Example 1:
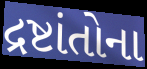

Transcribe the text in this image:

દ્રષ્ટાંતોના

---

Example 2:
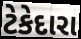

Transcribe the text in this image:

ટેકેદારા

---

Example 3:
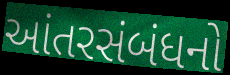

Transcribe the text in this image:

આંતરસંબંધનો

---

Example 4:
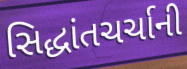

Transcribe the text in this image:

સિદ્ધાંતચર્ચાની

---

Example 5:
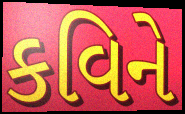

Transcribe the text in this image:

કવિને